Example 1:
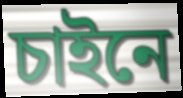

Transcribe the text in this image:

চাইনে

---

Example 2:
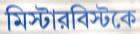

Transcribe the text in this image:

মিস্টারবিস্টকে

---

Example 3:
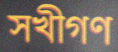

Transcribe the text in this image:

সখীগণ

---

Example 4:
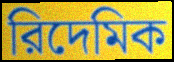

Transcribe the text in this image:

রিদেমিক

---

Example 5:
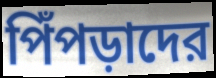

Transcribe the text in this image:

পিঁপড়াদের